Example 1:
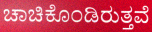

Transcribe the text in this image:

ಚಾಚಿಕೊಂಡಿರುತ್ತವೆ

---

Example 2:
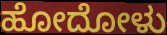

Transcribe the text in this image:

ಹೋದೋಳು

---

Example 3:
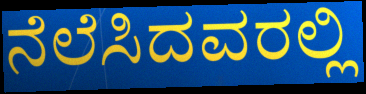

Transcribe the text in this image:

ನೆಲೆಸಿದವರಲ್ಲಿ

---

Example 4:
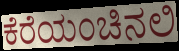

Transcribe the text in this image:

ಕೆರೆಯಂಚಿನಲಿ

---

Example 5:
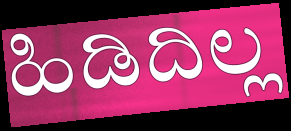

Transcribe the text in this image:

ಹಿಡಿದಿಲ್ಲ